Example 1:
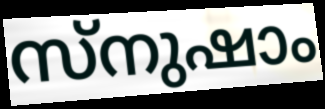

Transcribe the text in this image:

സ്നുഷാം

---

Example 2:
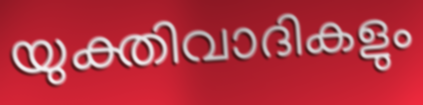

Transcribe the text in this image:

യുക്തിവാദികളും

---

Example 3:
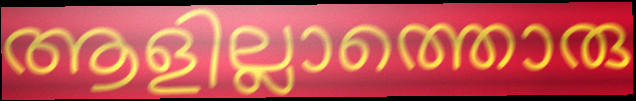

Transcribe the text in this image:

ആളില്ലാത്തൊരു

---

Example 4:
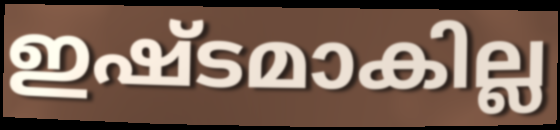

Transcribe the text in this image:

ഇഷ്ടമാകില്ല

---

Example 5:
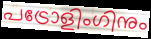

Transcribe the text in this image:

പട്രോളിംഗിനും